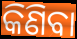
କିଣିବା